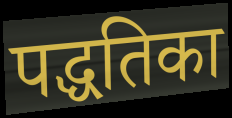
पद्धतिका